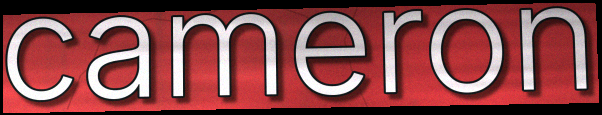
cameron